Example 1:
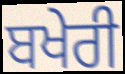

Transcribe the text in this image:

ਬਖੇਰੀ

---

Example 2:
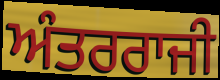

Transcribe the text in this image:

ਅੰਤਰਰਾਜੀ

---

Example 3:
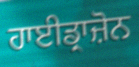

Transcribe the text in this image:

ਹਾਈਡ੍ਰਾਜ਼ੋਨ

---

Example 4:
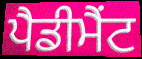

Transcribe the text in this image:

ਪੈਡੀਮੈਂਟ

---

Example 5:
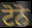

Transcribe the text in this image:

ਟੋਨੋ